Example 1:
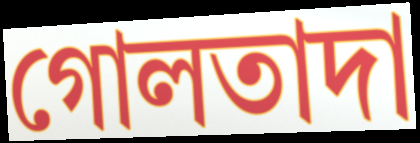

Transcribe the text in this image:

গোলতাদা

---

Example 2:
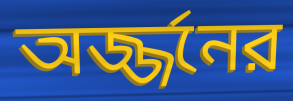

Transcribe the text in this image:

অর্জ্জনের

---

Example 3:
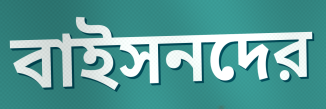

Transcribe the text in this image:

বাইসনদের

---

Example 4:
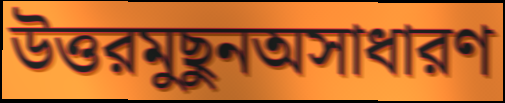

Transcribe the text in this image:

উত্তরমুছুনঅসাধারণ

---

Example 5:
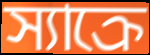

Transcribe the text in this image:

স্যাক্রে